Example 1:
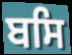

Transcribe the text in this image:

ਬਸਿ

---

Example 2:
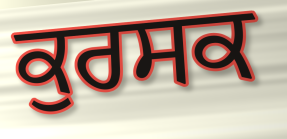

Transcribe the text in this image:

ਕੁਰਸਕ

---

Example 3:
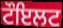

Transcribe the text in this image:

ਟੌਇਲਟ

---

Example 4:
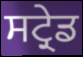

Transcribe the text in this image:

ਸਟ੍ਰੇਡ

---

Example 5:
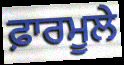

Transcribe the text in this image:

ਫ਼ਾਰਮੂਲੇ